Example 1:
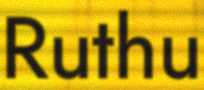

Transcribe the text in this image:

Ruthu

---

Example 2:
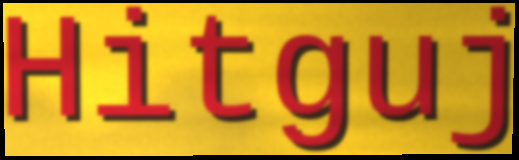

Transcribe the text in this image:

Hitguj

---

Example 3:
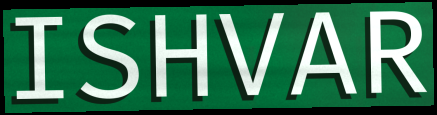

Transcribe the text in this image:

ISHVAR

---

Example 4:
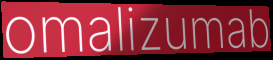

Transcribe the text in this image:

omalizumab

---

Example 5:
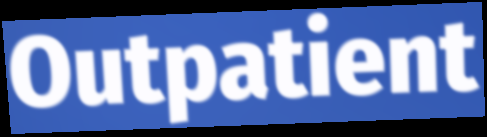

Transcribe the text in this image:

Outpatient